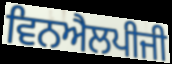
ਵਿਨਐਲਪੀਜੀ